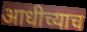
आधीच्याच